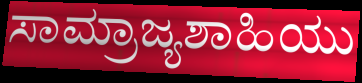
ಸಾಮ್ರಾಜ್ಯಶಾಹಿಯು